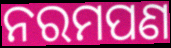
ନରମପଣ